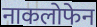
नाकलोफेन